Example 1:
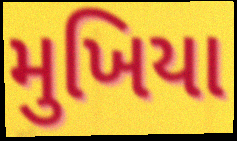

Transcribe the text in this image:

મુખિયા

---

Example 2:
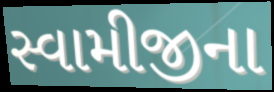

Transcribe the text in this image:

સ્વામીજીના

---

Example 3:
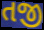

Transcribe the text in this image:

તજી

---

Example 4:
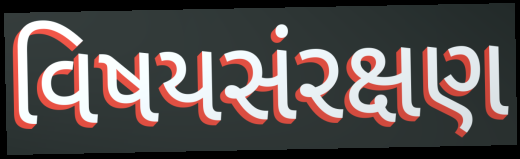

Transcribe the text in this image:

વિષયસંરક્ષણ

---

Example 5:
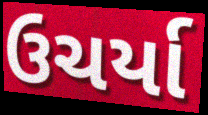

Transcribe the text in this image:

ઉચર્યા